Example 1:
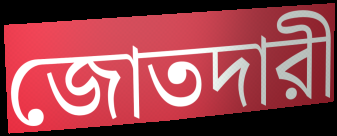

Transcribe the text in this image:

জোতদারী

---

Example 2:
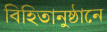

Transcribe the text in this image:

বিহিতানুষ্ঠানে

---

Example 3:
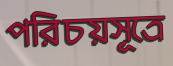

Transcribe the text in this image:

পরিচয়সূত্রে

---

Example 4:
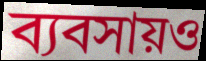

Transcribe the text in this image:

ব্যবসায়ও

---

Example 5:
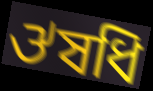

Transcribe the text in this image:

ঔষধি